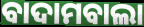
ବାଦାମବାଲା